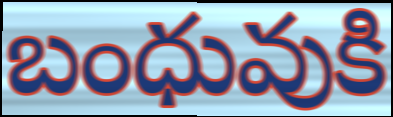
బంధువుకి